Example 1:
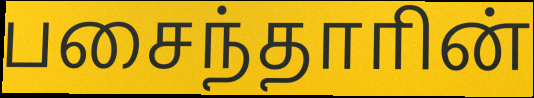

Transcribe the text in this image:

பசைந்தாரின்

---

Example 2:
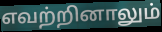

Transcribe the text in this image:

எவற்றினாலும்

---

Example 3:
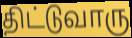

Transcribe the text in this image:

திட்டுவாரு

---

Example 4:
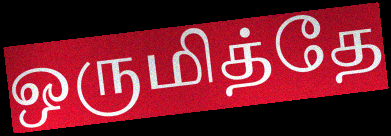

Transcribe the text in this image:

ஒருமித்தே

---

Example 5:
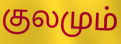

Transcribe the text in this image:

குலமும்